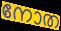
നോത